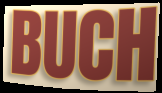
BUCH